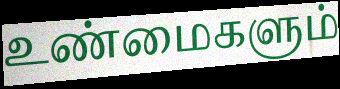
உண்மைகளும்